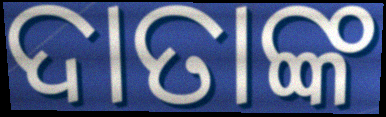
ଦାତାଙ୍କ